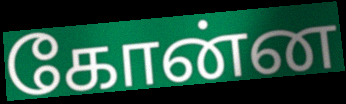
கோன்ன